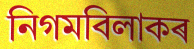
নিগমবিলাকৰ